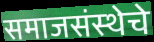
समाजसंस्थेचे